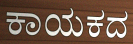
ಕಾಯಕದ